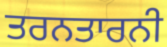
ਤਰਨਤਾਰਨੀ